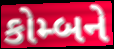
કોમ્બને